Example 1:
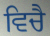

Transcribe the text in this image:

ਵਿਚੈ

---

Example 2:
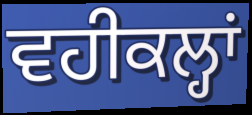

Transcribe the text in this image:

ਵਹੀਕਲ੍ਹਾਂ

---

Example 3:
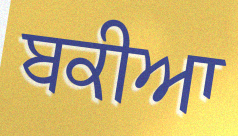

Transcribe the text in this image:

ਬਕੀਆ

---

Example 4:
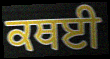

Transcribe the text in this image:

ਕਥਈ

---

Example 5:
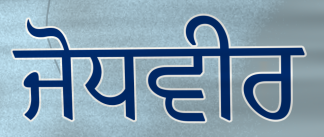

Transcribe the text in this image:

ਜੋਧਵੀਰ